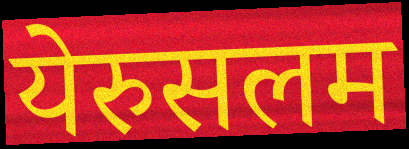
येरुसलम